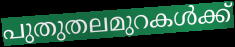
പുതുതലമുറകൾക്ക്